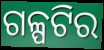
ଗଳ୍ପଟିର